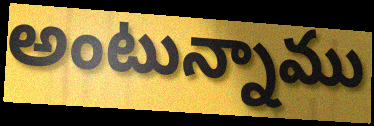
అంటున్నాము